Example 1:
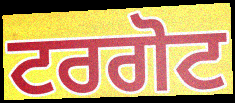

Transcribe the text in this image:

ਟਰਗੋਟ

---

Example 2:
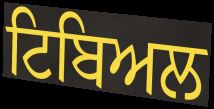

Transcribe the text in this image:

ਟਿਬਿਅਲ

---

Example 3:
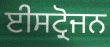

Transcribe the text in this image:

ਈਸਟ੍ਰੋਜਨ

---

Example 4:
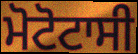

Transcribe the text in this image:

ਮੋਟੋਟਾਸੀ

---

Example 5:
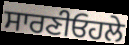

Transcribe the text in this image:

ਸਾਰਣੀਓਹਲੇ